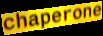
chaperone